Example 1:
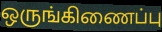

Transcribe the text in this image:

ஒருங்கிணைப்பு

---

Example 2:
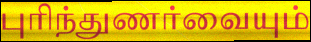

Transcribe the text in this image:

புரிந்துணர்வையும்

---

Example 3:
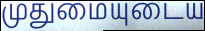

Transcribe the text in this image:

முதுமையுடைய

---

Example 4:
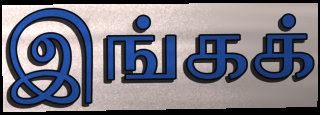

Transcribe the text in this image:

இங்கக்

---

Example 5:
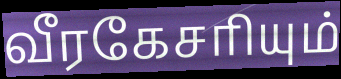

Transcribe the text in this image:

வீரகேசரியும்